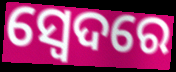
ସ୍ଵେଦରେ